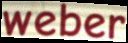
weber